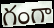
గంగా